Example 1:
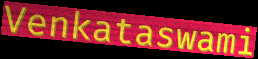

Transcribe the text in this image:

Venkataswami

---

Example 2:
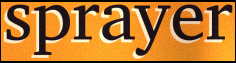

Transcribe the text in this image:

sprayer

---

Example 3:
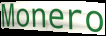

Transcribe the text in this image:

Monero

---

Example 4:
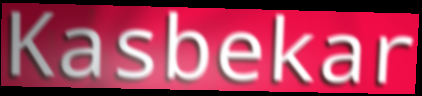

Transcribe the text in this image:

Kasbekar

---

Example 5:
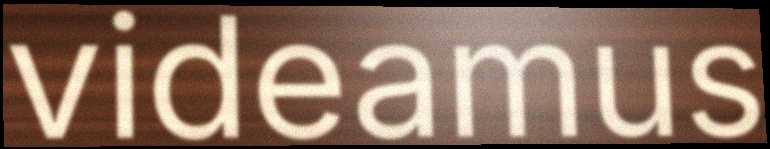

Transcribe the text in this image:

videamus